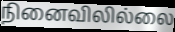
நினைவிலில்லை